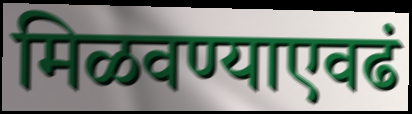
मिळवण्याएवढं